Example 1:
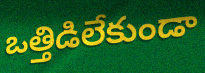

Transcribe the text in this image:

ఒత్తిడిలేకుండా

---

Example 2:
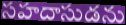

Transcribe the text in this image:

సహదాసుడను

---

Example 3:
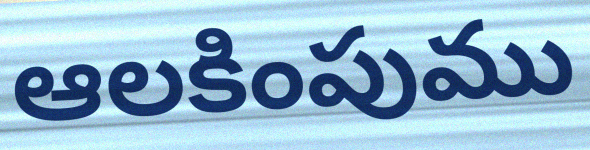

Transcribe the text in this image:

ఆలకింపుము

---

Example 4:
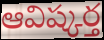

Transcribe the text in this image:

ఆవిష్కర్త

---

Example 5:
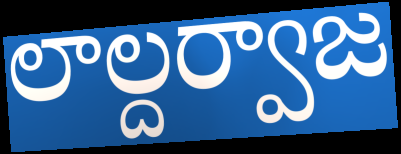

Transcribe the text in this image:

లాల్దర్వాజ